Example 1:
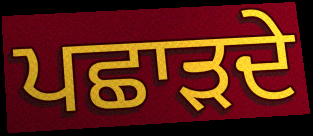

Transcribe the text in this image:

ਪਛਾੜਦੇ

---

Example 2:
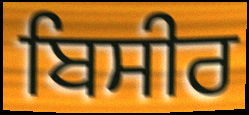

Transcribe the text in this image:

ਬਿਸੀਰ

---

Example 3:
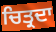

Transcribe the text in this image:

ਚਿਤ੍ਰਦਾ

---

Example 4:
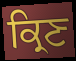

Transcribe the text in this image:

ਕ੍ਰਿਣ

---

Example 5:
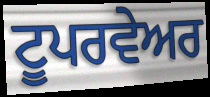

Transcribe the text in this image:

ਟੂਪਰਵੇਅਰ